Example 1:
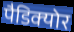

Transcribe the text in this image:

पैडिक्योर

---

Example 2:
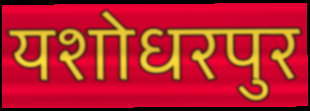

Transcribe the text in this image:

यशोधरपुर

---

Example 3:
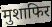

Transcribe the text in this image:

मुशाफिर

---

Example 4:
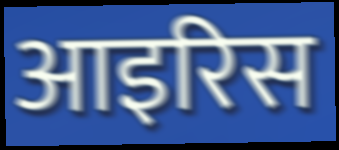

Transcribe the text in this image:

आइरिस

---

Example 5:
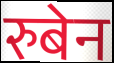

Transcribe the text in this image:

रुबेन